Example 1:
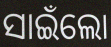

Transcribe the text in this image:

ସାଇଁଲୋ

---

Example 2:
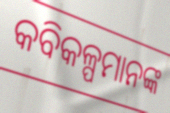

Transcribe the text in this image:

କବିକଳ୍ପମାନଙ୍କ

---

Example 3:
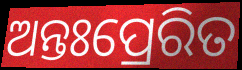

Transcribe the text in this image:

ଅନ୍ତଃପ୍ରେରିତ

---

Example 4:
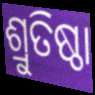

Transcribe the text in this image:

ଶ୍ରୁତିଷ୍ଠା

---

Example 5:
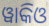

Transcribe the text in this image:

ୱାକିଓ